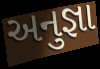
અનુજ્ઞા